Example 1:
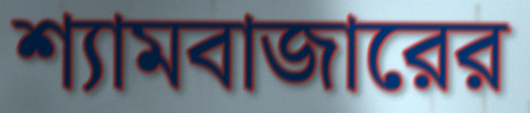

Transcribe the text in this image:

শ্যামবাজারের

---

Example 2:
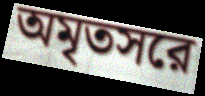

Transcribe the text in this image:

অমৃতসরে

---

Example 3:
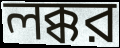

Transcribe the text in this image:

লক্কর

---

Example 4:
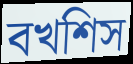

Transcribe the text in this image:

বখশিস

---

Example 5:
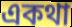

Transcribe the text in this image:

একথা